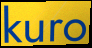
kuro